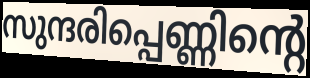
സുന്ദരിപ്പെണ്ണിന്റെ